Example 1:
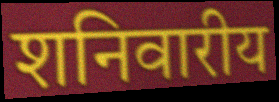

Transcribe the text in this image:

शनिवारीय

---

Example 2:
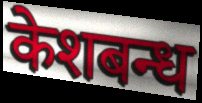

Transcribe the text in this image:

केशबन्ध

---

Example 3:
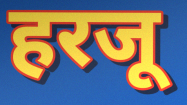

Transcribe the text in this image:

हरजू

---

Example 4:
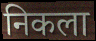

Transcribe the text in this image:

निकला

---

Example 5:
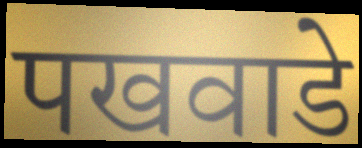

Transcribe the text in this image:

पखवाडे